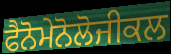
ਫੈਨੋਮੇਨੋਲੋਜੀਕਲ